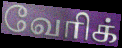
வேரிக்